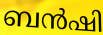
ബൻഷി